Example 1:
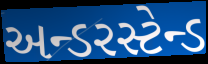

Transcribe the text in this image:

અન્ડરસ્ટેન્ડ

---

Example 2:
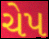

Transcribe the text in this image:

ચેપ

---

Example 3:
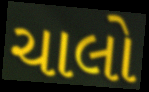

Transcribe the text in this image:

ચાલો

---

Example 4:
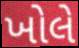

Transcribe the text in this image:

ખોલે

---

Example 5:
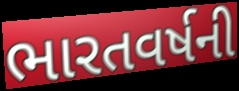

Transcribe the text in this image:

ભારતવર્ષની